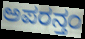
ಅಪರನ್ತಂ